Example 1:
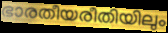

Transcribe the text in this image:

ഭാരതീയരീതിയിലും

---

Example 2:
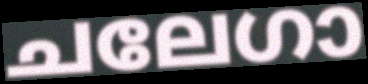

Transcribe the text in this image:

ചലേഗാ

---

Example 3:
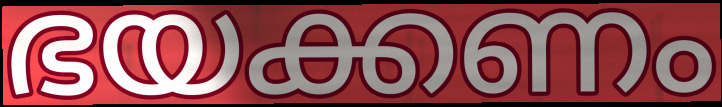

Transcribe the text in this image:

ഭയക്കണം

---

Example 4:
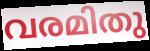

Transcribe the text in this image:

വരമിതു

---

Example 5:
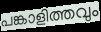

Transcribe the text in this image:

പങ്കാളിത്തവും